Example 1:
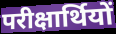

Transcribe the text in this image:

परीक्षार्थियों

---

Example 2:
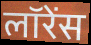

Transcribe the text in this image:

लॉरेंस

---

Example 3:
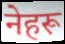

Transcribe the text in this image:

नेहरू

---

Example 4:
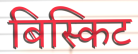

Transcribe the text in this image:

बिस्किट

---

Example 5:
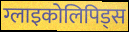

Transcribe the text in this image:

ग्लाइकोलिपिड्स